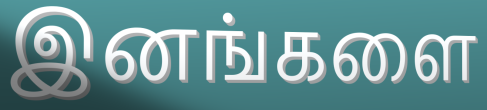
இனங்களை